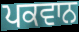
ਪਕਵਾਨ